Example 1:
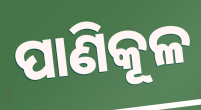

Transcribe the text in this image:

ପାଣିକୂଳ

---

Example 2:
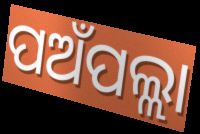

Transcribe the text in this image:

ପଅଁପଲ୍ଲା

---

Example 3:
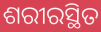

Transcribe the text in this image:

ଶରୀରସ୍ଥିତ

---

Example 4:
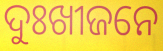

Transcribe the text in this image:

ଦୁଃଖୀଜନେ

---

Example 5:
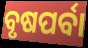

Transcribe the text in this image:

ବୃଷପର୍ବା